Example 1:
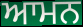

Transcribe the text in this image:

ਆਮਨ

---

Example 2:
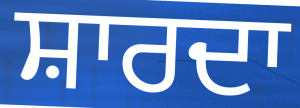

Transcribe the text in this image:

ਸ਼ਾਰਦਾ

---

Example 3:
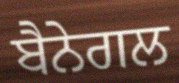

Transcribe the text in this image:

ਬੈਨੇਗਲ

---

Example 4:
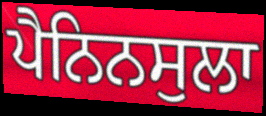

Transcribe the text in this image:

ਪੈਨਿਨਸੁਲਾ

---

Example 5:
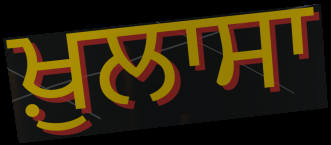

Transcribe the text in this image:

ਖ਼ੁਲਾਸਾ